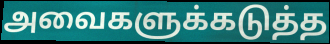
அவைகளுக்கடுத்த